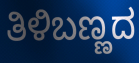
ತಿಳಿಬಣ್ಣದ